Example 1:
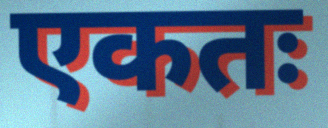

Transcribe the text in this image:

एकतः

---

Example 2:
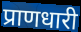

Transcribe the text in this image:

प्राणधारी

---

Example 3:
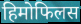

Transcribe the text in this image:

हिमोफिलस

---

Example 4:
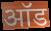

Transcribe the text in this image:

ऑड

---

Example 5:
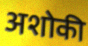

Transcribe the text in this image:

अशोकी